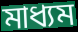
মাধ্যম